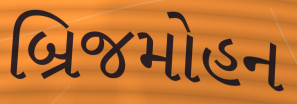
બ્રિજમોહન